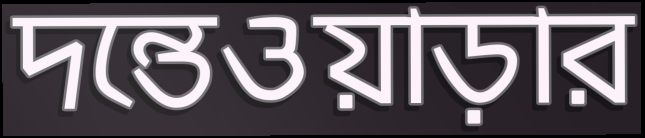
দন্তেওয়াড়ার